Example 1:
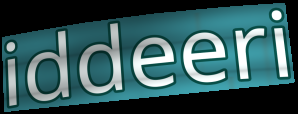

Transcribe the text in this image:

iddeeri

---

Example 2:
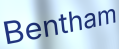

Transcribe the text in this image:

Bentham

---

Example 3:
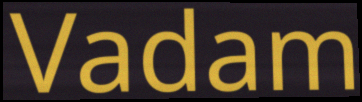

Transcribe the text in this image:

Vadam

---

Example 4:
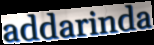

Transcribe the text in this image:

addarinda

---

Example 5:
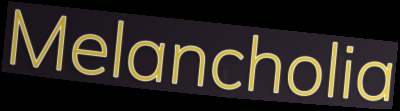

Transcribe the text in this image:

Melancholia